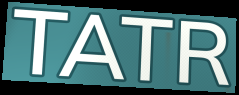
TATR